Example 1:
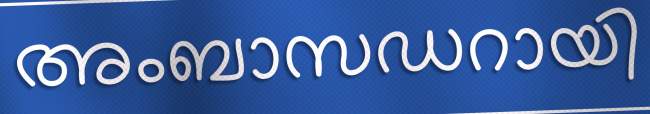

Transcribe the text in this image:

അംബാസഡറായി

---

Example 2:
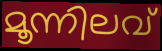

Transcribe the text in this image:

മൂന്നിലവ്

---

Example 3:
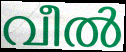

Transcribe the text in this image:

വീൽ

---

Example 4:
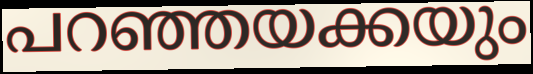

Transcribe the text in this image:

പറഞ്ഞയക്കയും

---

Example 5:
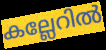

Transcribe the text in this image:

കല്ലേറിൽ